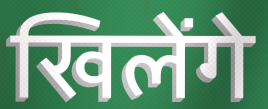
खिलेंगे